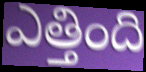
ఎత్తింది